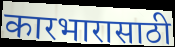
कारभारासाठी